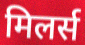
मिलर्स